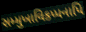
સમ્મુખાવિકપ્પનાપિ